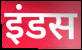
इंडस